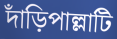
দাঁড়িপাল্লাটি